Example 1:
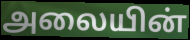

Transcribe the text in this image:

அலையின்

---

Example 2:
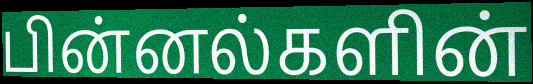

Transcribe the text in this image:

பின்னல்களின்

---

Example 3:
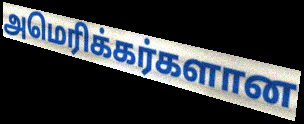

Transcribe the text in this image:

அமெரிக்கர்களான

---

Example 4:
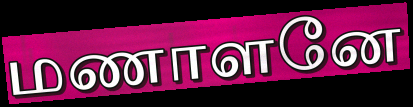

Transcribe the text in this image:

மணாளனே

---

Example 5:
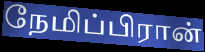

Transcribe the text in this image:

நேமிப்பிரான்